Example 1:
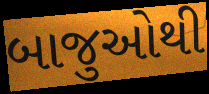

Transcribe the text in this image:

બાજુઓથી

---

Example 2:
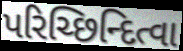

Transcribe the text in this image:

પરિચ્છિન્દિત્વા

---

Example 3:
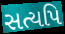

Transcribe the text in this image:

સત્યપિ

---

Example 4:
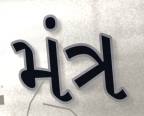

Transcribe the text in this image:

મંત્ર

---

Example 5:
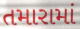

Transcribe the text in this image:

તમારામાં